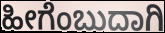
ಹೀಗೆಂಬುದಾಗಿ